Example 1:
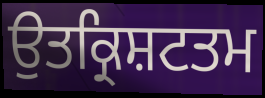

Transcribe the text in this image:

ਉਤਕ੍ਰਿਸ਼ਟਤਮ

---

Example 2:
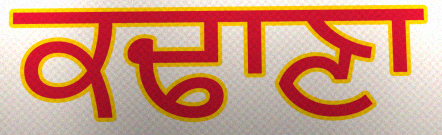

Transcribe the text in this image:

ਕਢਾਣਾ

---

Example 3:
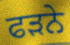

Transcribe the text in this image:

ਫੜਨੇ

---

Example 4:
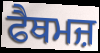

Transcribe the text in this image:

ਫੈਥਮਜ਼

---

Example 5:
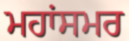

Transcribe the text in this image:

ਮਹਾਂਸਮਰ